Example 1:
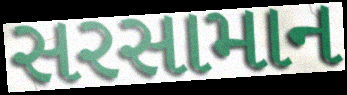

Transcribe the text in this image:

સરસામાન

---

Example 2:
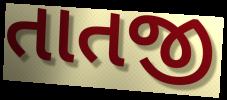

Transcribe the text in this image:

તાતજી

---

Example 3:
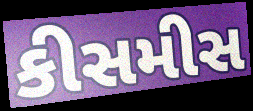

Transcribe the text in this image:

કીસમીસ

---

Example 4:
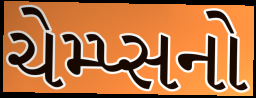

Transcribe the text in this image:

ચેમ્પ્સનો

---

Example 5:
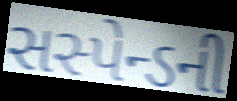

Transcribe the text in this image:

સસ્પેન્ડની